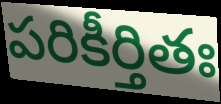
పరికీర్తితః